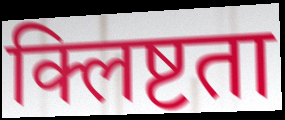
क्‍लिष्टता